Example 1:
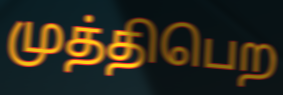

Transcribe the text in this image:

முத்திபெற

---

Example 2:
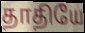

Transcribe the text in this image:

தாதியே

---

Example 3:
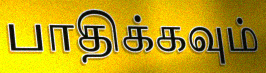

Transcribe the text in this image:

பாதிக்கவும்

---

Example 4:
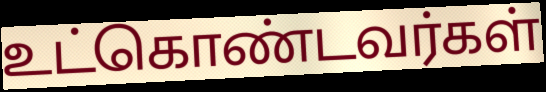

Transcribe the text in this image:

உட்கொண்டவர்கள்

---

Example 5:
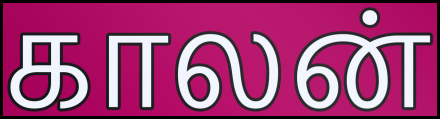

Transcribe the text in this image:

காலன்